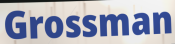
Grossman